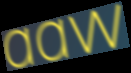
aaw